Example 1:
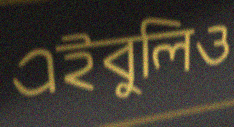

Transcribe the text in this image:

এইবুলিও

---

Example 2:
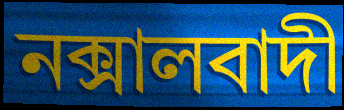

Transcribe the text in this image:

নক্সালবাদী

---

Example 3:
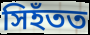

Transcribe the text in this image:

সিহঁতত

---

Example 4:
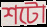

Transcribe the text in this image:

শটো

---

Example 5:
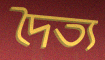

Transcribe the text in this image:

দৈত্য